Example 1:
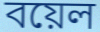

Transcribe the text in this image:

বয়েল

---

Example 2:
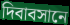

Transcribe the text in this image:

দিবাবসানে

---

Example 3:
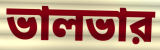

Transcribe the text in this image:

ভালভার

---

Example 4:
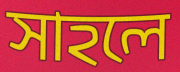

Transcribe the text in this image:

সাহলে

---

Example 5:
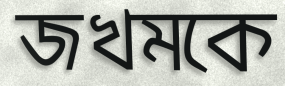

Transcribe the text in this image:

জখমকে